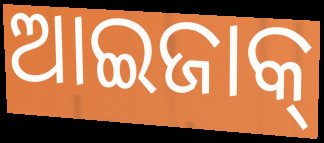
ଆଇଜାକ୍